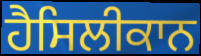
ਹੈਸਿਲੀਕਾਨ